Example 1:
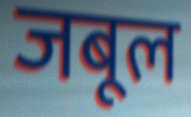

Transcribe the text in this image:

जबूल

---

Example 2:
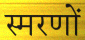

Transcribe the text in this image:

स्मरणों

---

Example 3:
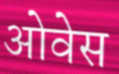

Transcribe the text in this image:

ओवेस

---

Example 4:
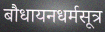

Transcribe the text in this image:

बौधायनधर्मसूत्र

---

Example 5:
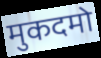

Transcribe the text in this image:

मुकदमो